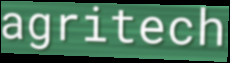
agritech